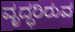
ವೃದ್ಧರಿರುವ